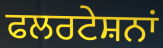
ਫਲਰਟੇਸ਼ਨਾਂ